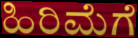
ಹಿರಿಮೆಗೆ